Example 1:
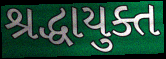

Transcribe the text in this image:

શ્રદ્ધાયુક્ત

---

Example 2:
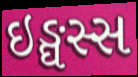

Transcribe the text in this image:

ઇઙ્ઘસ્સ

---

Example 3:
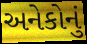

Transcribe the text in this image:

અનેકોનું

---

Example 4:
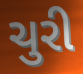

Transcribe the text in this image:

ચુરી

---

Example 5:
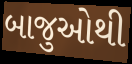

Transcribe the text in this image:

બાજુઓથી